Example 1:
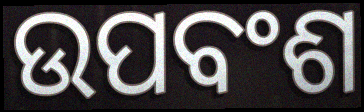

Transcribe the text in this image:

ଉପବଂଶ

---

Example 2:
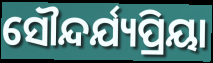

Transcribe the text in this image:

ସୌନ୍ଦର୍ଯ୍ୟପ୍ରିୟା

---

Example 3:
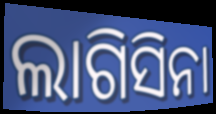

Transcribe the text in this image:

ଲାଗିସିନା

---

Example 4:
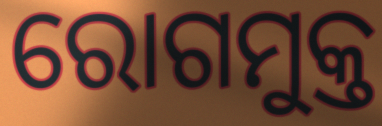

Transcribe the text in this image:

ରୋଗମୁକ୍ତ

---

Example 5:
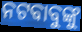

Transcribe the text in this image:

ନଟବାବୁଙ୍କୁ